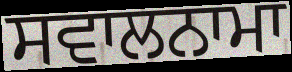
ਸਵਾਲਨਾਮਾ